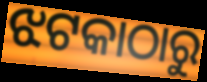
ଝଟକାଠାରୁ